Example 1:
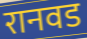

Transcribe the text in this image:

रानवड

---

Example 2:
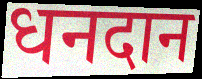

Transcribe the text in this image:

धनदान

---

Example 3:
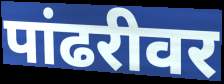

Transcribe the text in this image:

पांढरीवर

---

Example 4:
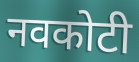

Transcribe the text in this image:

नवकोटी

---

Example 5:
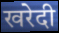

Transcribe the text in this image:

खरेदी